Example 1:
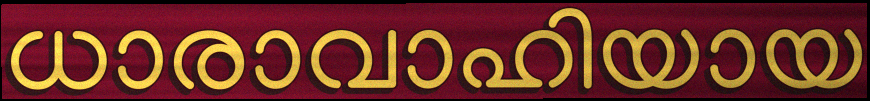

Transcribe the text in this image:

ധാരാവാഹിയായ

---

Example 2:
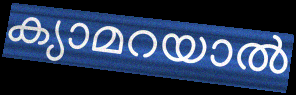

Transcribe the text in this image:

ക്യാമറയാൽ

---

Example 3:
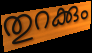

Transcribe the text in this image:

തുറക്കും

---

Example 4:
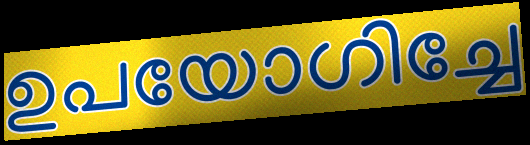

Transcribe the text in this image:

ഉപയോഗിച്ചേ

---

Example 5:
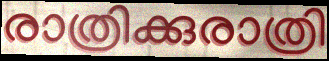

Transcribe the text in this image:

രാത്രിക്കുരാത്രി